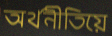
অৰ্থনীতিয়ে